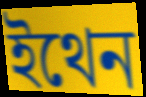
ইথেন